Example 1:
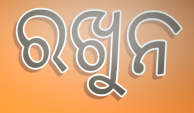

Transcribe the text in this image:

ରଖୁନ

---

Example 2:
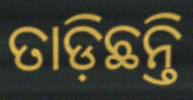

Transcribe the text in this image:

ତାଡ଼ିଛନ୍ତି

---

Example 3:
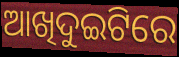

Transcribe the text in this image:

ଆଖିଦୁଇଟିରେ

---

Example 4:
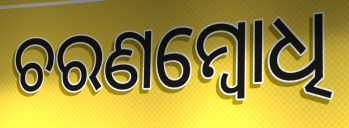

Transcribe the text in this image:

ଚରଣମ୍ବୋଧି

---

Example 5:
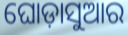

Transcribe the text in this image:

ଘୋଡ଼ାସୁଆର